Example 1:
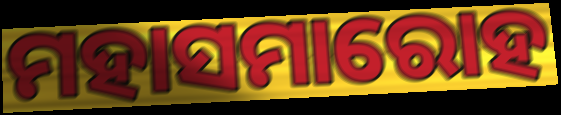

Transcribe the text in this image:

ମହାସମାରୋହ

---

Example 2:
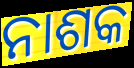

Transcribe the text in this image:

ନାଶକ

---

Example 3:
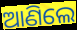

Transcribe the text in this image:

ଆଣିଲେ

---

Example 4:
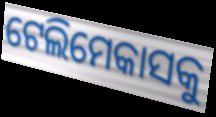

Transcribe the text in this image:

ଟେଲିମେକାସକୁ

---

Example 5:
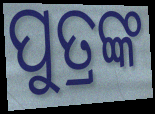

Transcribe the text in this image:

ପୁତ୍ରଙ୍କ